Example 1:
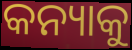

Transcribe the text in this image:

କନ୍ୟାକୁ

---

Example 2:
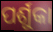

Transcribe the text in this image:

ପର୍ଶୁକା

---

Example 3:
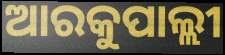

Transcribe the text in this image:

ଆରକୁପାଲ୍ଲୀ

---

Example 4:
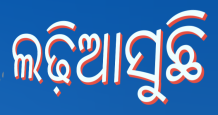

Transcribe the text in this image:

ଲଢ଼ିଆସୁଛି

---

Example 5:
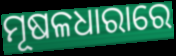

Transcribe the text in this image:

ମୂଷଳଧାରାରେ